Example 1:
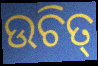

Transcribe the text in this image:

ଉଚିତ୍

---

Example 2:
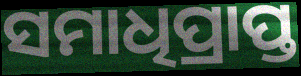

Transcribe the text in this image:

ସମାଧିପ୍ରାପ୍ତ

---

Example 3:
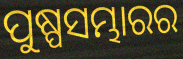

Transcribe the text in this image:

ପୁଷ୍ପସମ୍ଭାରର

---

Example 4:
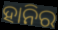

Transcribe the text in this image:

ହାନିର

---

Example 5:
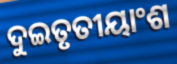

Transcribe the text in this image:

ଦୁଇତୃତୀୟାଂଶ